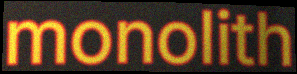
monolith